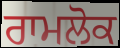
ਰਾਮਲੋਕ